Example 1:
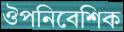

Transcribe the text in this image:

ঔপনিবেশিক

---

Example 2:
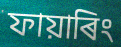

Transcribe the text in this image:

ফায়াৰিং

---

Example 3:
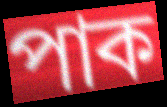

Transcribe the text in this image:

পাক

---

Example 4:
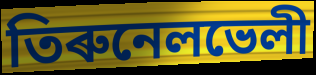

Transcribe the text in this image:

তিৰুনেলভেলী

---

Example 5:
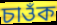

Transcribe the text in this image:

চাওঁক